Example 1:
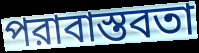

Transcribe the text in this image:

পরাবাস্তবতা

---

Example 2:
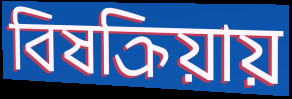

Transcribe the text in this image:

বিষক্রিয়ায়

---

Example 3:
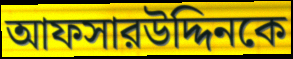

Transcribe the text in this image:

আফসারউদ্দিনকে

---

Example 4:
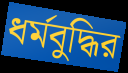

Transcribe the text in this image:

ধর্মবুদ্ধির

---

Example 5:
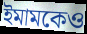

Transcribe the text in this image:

ইমামকেও